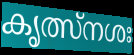
കൃത്സ്നശഃ